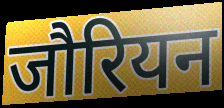
जौरियन